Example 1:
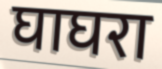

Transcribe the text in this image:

घाघरा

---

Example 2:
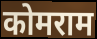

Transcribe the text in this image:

कोमराम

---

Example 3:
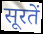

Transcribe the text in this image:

सूरतें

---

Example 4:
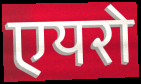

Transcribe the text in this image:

एयरो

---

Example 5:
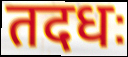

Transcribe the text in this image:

तदधः